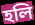
হলি